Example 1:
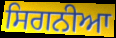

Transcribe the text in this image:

ਸਿਗਨੀਆ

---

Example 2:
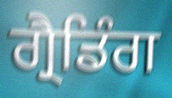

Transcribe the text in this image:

ਗ੍ਰੈਡਿੰਗ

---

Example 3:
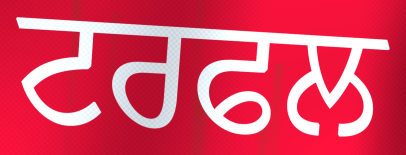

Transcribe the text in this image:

ਟਰਫਲ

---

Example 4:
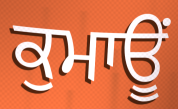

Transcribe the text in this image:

ਕੁਮਾਊਂ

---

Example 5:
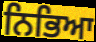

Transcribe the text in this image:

ਨਿਭਿਆ